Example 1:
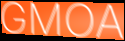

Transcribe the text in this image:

GMOA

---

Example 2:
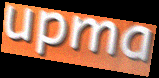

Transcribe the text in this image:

upma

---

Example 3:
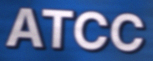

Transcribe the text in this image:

ATCC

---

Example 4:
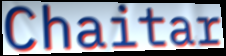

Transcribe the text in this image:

Chaitar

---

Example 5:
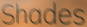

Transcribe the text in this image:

Shades